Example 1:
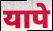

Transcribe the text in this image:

यापे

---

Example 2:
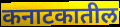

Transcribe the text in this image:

कनाटकातील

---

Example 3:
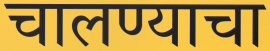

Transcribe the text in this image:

चालण्याचा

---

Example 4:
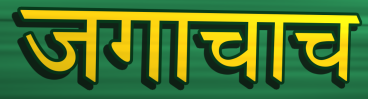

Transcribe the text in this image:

जगाचाच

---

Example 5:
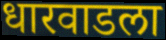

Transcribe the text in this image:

धारवाडला